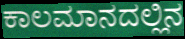
ಕಾಲಮಾನದಲ್ಲಿನ